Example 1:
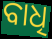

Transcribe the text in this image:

ବାଧି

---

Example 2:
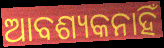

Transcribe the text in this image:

ଆବଶ୍ୟକନାହିଁ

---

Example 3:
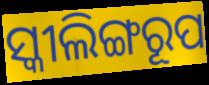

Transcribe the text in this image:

ସ୍କୀଲିଙ୍ଗରୂପ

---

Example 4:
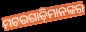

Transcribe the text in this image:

ମଟରଗାଡ଼ିମାନଙ୍କର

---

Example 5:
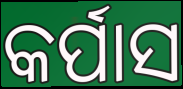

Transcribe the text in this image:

କର୍ପାସ